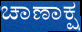
ಚಾಣಾಕ್ಷ